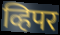
व्हिपर